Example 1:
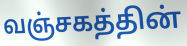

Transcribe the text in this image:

வஞ்சகத்தின்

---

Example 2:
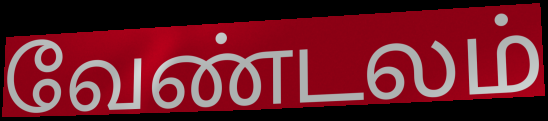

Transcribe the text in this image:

வேண்டலம்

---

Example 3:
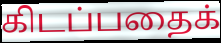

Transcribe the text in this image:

கிடப்பதைக்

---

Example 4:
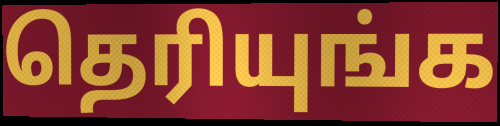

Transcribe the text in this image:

தெரியுங்க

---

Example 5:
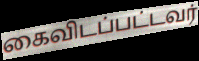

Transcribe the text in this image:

கைவிடப்பட்டவர்